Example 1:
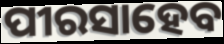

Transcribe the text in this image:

ପୀରସାହେବ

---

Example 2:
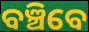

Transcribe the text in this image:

ବଞ୍ଚିବେ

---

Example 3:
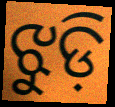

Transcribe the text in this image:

ଝୁଡ଼ି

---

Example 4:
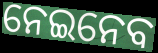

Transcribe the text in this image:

ନେଇନେବ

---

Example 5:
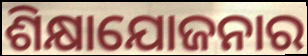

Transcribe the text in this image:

ଶିକ୍ଷାଯୋଜନାର